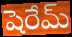
షెరేమ్